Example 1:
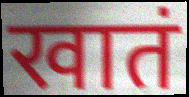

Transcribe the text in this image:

खातं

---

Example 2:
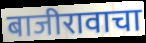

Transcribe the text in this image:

बाजीरावाचा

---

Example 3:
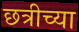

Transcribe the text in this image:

छत्रीच्या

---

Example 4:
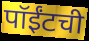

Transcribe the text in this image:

पॉईंटची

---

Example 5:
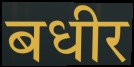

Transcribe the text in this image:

बधीर